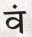
वं